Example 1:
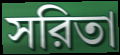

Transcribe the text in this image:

সরিতা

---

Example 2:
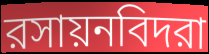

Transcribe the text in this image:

রসায়নবিদরা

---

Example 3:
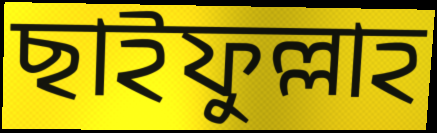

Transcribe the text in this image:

ছাইফুল্লাহ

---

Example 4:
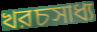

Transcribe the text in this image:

খরচসাধ্য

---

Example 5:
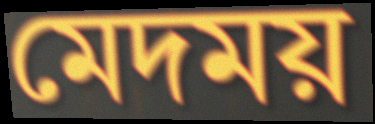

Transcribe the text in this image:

মেদময়